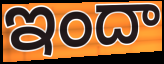
ఇందా